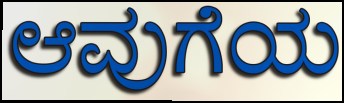
ಆವುಗೆಯ